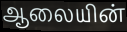
ஆலையின்